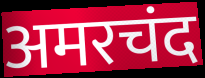
अमरचंद